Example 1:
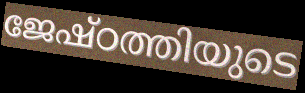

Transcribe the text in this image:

ജേഷ്ഠത്തിയുടെ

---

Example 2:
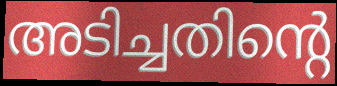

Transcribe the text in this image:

അടിച്ചതിന്റെ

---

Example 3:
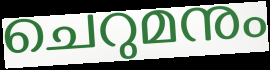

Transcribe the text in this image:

ചെറുമനും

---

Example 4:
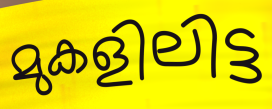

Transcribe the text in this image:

മുകളിലിട്ട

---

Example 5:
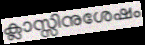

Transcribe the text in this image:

ക്ലാസ്സിനുശേഷം